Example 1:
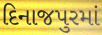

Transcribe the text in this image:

દિનાજપુરમાં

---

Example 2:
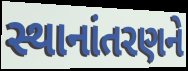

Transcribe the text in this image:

સ્થાનાંતરણને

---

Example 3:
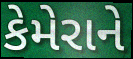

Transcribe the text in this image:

કેમેરાને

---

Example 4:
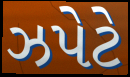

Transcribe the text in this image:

ઝપેટે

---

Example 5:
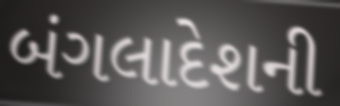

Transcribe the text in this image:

બંગલાદેશની